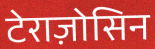
टेराज़ोसिन